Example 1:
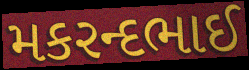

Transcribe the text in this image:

મકરન્દભાઈ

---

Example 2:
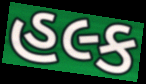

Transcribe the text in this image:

હલ્ક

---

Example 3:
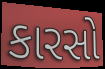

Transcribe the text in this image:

કારસો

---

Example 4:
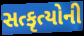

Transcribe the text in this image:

સત્કૃત્યોની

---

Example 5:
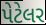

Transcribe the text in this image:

પેટેલર